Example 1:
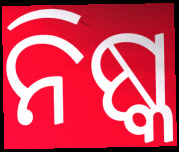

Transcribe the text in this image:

ନିଷ୍କ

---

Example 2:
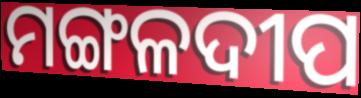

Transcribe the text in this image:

ମଙ୍ଗଳଦୀପ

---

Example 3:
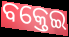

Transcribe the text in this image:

ବକ୍ତେଇ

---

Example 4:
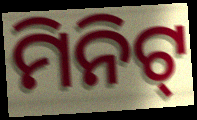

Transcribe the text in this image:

ମିନିଟ୍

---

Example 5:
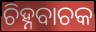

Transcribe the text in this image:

ଚିହ୍ନବାଚକ